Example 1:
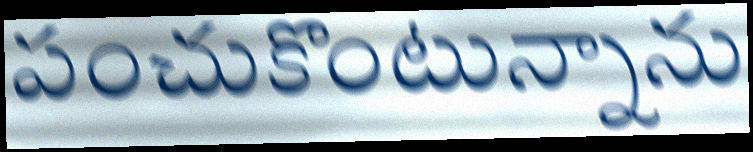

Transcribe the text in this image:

పంచుకొంటున్నాను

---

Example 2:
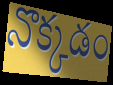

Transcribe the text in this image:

నొక్కడం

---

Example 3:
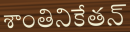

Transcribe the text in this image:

శాంతినికేతన్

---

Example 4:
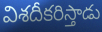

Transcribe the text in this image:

విశదీకరిస్తాడు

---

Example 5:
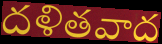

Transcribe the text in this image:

దళితవాద